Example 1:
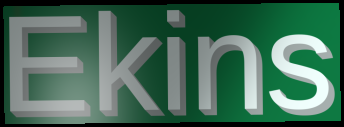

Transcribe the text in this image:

Ekins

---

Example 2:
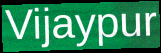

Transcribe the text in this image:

Vijaypur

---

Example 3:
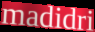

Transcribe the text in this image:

madidri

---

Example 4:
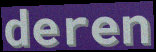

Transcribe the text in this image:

deren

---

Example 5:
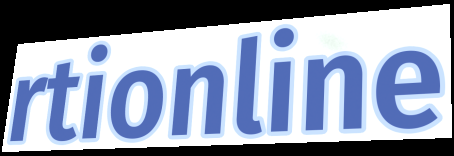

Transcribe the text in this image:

rtionline